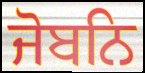
ਜੋਬਨਿ